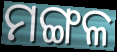
ମଙ୍ଗଳ